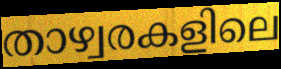
താഴ്വരകളിലെ